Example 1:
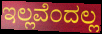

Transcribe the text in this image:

ಇಲ್ಲವೆಂದಲ್ಲ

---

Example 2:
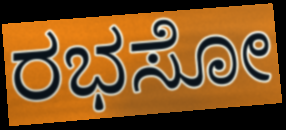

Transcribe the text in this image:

ರಭಸೋ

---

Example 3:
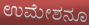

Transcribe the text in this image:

ಉಮೇಶನೂ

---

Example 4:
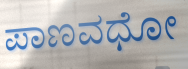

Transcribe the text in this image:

ಪಾಣವಧೋ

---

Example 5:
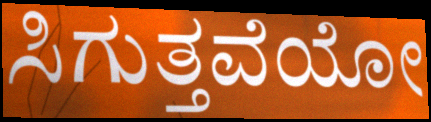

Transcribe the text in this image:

ಸಿಗುತ್ತವೆಯೋ